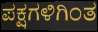
ಪಕ್ಷಗಳಿಗಿಂತ